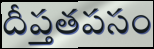
దీప్తతపసం